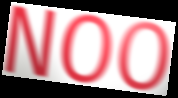
NOO